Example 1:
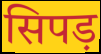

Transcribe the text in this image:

सिपड़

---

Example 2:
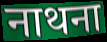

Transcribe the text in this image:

नाथना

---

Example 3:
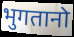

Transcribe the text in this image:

भुगतानो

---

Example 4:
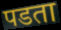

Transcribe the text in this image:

पडता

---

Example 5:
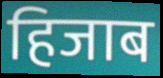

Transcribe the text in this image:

हिजाब